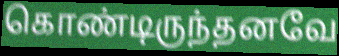
கொண்டிருந்தனவே